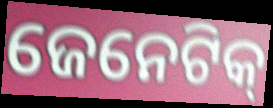
ଜେନେଟିକ୍